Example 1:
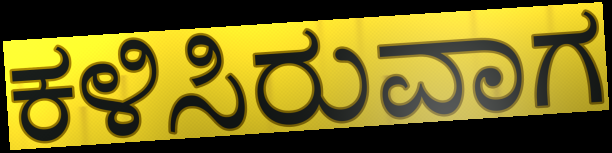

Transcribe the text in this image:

ಕಳಿಸಿರುವಾಗ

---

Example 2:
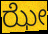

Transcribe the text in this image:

ಝೇ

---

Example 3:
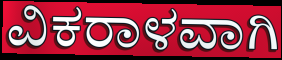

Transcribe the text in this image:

ವಿಕರಾಳವಾಗಿ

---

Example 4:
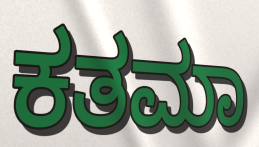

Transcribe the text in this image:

ಕತಮಾ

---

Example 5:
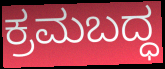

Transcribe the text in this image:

ಕ್ರಮಬದ್ಧ